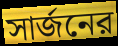
সার্জনের